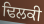
ਢਿਲਕੀ